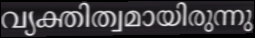
വ്യക്തിത്വമായിരുന്നു